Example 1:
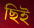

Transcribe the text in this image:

ছিই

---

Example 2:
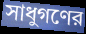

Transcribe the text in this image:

সাধুগণের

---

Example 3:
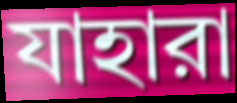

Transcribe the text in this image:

যাহারা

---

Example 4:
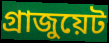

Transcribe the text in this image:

গ্রাজুয়েট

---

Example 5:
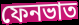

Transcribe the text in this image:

ফেনভাত